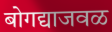
बोगद्याजवळ